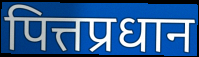
पित्तप्रधान